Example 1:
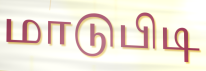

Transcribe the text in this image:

மாடுபிடி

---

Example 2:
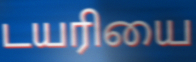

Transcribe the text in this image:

டயரியை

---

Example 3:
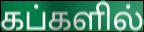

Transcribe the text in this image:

கப்களில்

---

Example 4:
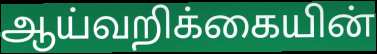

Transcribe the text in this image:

ஆய்வறிக்கையின்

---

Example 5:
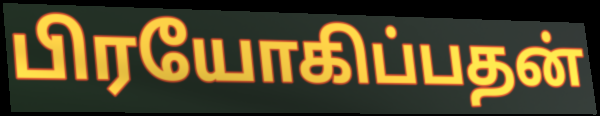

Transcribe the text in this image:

பிரயோகிப்பதன்